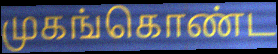
முகங்கொண்ட